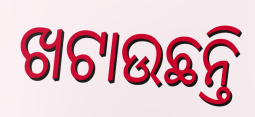
ଖଟାଉଛନ୍ତି